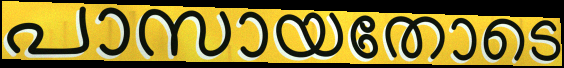
പാസായതോടെ